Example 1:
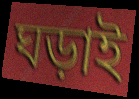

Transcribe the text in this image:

ঘড়াই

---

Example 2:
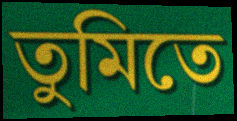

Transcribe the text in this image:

তুমিতে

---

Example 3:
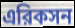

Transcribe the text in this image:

এরিকসন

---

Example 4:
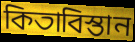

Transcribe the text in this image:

কিতাবিস্তান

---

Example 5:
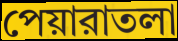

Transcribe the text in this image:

পেয়ারাতলা